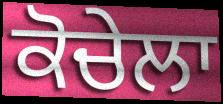
ਕੋਚੇਲਾ